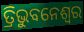
ତ୍ରିଭୁବନେଶ୍ବର